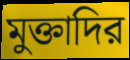
মুক্তাদির